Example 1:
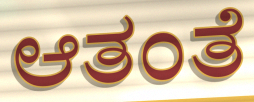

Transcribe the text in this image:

ಆತಂತೆ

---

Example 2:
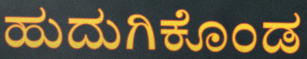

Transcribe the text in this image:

ಹುದುಗಿಕೊಂಡ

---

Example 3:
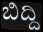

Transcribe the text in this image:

ಬಿದ್ದಿ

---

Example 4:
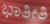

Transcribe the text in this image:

ಭಾತೀತಿ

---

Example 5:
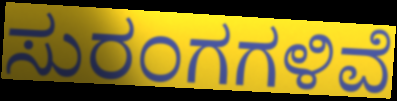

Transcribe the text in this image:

ಸುರಂಗಗಳಿವೆ